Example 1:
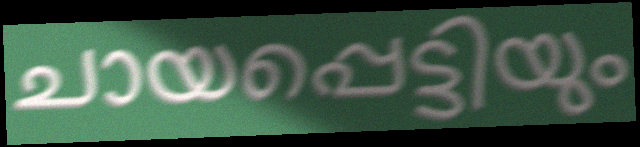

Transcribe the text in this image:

ചായപ്പെട്ടിയും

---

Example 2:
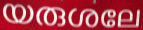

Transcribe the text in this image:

യരുശലേ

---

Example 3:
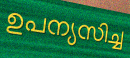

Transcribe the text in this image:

ഉപന്യസിച്ച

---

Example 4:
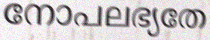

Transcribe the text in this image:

നോപലഭ്യതേ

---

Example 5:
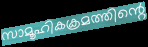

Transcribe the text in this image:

സാമൂഹികക്രമത്തിന്റെ